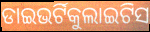
ଡାଇଭର୍ଟିକୁଲାଇଟିସ